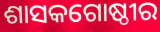
ଶାସକଗୋଷ୍ଠୀର